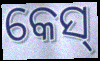
କେସ୍